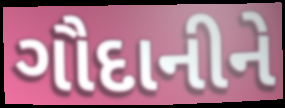
ગૌદાનીને